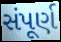
સંપૂર્ણ